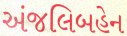
અંજલિબહેન